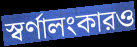
স্বর্ণালংকারও